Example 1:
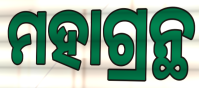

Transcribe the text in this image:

ମହାଗ୍ରନ୍ଥ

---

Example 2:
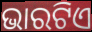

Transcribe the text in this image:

ଭାରଟିଏ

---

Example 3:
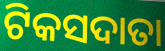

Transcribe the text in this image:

ଟିକସଦାତା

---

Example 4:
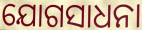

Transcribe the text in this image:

ଯୋଗସାଧନା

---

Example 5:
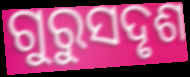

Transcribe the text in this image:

ଗୁରୁସଦୃଶ